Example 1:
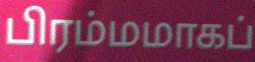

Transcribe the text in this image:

பிரம்மமாகப்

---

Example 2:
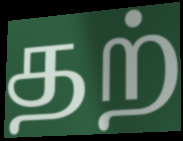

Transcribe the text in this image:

தற்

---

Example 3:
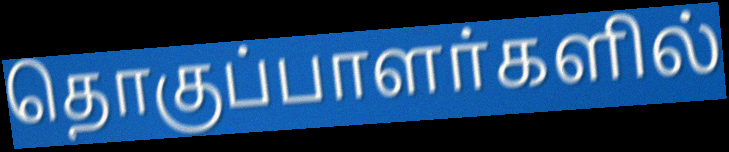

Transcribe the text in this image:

தொகுப்பாளர்களில்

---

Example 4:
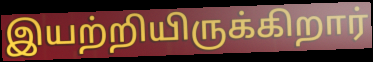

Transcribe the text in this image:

இயற்றியிருக்கிறார்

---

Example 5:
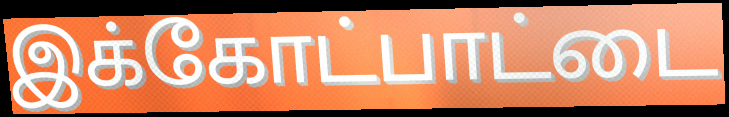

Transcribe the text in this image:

இக்கோட்பாட்டை